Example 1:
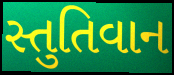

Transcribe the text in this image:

સ્તુતિવાન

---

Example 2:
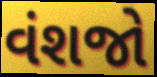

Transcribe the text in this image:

વંશજો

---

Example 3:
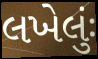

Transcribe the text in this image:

લખેલુંઃ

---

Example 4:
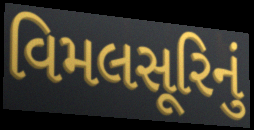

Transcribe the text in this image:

વિમલસૂરિનું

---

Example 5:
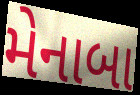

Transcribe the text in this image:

મેનાબા